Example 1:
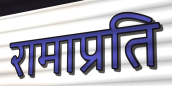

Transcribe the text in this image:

रामाप्रति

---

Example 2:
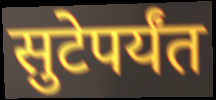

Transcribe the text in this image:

सुटेपर्यंत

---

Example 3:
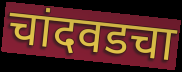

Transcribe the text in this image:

चांदवडचा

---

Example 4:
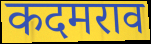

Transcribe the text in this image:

कदमराव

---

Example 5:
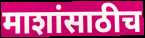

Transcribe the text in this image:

माशांसाठीच